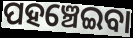
ପହଞ୍ଚେଇବା